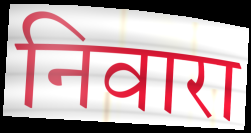
निवारा